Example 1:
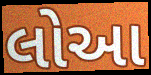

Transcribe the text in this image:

લોઆ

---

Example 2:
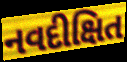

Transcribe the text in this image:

નવદીક્ષિત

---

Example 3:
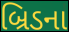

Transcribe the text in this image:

બ્રિડના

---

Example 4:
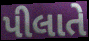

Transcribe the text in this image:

પીલાતે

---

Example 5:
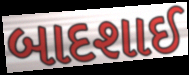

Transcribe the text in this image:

બાદશાઈ